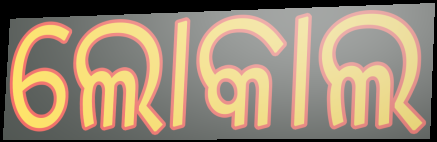
ଲୋକାଲ